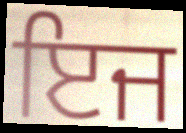
ਇਜ